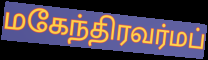
மகேந்திரவர்மப்